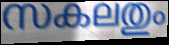
സകലതും